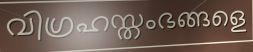
വിഗ്രഹസ്തംഭങ്ങളെ